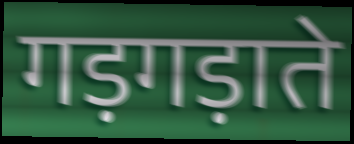
गड़गड़ाते